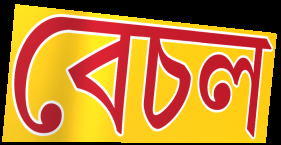
বেচল